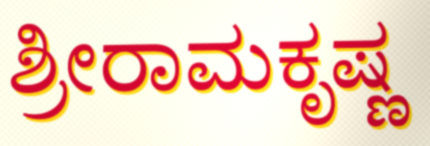
ಶ್ರೀರಾಮಕೃಷ್ಣ